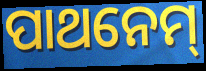
ପାଥନେମ୍